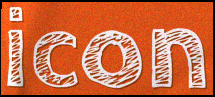
icon